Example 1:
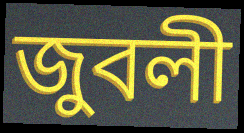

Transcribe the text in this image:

জুবলী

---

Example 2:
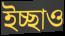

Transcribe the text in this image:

ইচ্ছাও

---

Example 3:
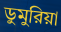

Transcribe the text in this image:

ডুমুরিয়া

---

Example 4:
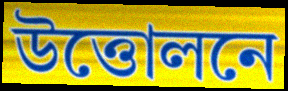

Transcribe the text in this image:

উত্তোলনে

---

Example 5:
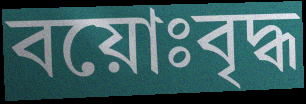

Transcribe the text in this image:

বয়োঃবৃদ্ধ